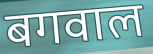
बगवाल